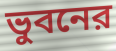
ভুবনের